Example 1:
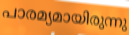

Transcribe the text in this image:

പാരമ്യമായിരുന്നു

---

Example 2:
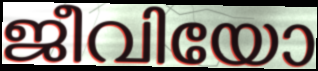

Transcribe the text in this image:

ജീവിയോ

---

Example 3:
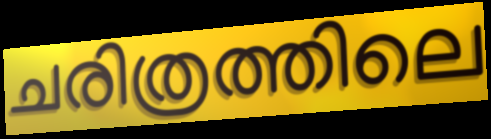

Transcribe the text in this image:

ചരിത്രത്തിലെ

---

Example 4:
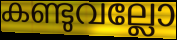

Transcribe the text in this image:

കണ്ടുവല്ലോ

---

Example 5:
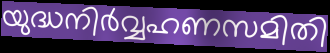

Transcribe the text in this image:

യുദ്ധനിർവ്വഹണസമിതി